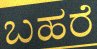
ಬಹರೆ